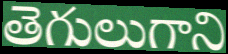
తెగులుగాని